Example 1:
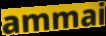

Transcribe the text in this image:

ammai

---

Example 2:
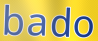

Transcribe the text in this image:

bado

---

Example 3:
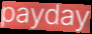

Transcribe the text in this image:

payday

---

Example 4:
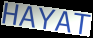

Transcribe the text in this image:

HAYAT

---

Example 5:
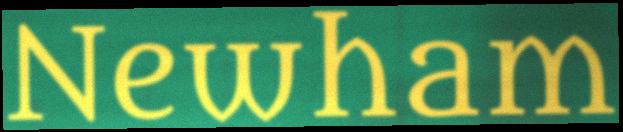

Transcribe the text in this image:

Newham